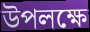
উপলক্ষে